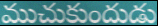
ముచుకుందుడు